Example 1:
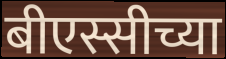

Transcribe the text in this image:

बीएस्सीच्या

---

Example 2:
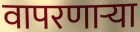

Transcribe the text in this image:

वापरणाऱ्या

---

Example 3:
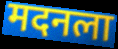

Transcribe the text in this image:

मदनला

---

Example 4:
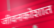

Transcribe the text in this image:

जीवनकोशात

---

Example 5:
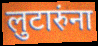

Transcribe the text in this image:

लुटारुंना